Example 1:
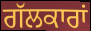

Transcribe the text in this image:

ਗੱਲਕਾਰਾਂ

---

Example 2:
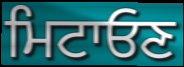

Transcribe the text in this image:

ਮਿਟਾਓਣ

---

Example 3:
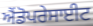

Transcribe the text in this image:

ਐਂਡੋਪਰੇਸਾਈਟ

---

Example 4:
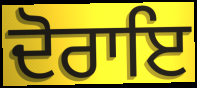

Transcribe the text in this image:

ਦੋਰਾਇ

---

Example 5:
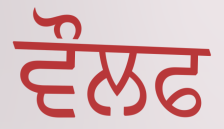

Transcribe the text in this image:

ਵੌਲਫ